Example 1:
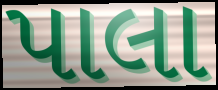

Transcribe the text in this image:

પાલા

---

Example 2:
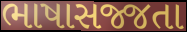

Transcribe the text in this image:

ભાષાસજ્જતા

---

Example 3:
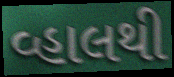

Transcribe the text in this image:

વ્હાલથી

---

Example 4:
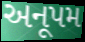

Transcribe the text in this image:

અનૂપમ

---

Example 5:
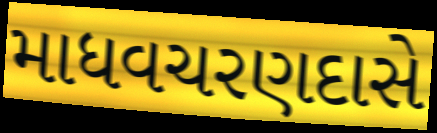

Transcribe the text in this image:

માધવચરણદાસે